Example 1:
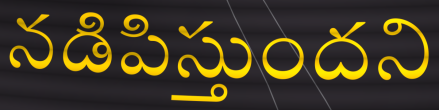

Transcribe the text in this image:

నడిపిస్తుందని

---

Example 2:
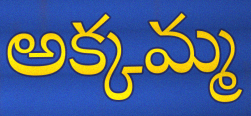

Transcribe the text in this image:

అక్కమ్మ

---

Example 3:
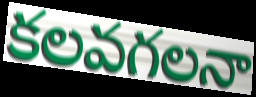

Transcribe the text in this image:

కలవగలనా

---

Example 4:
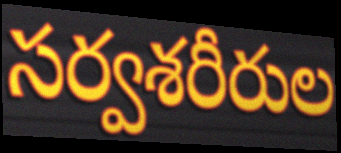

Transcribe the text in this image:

సర్వశరీరుల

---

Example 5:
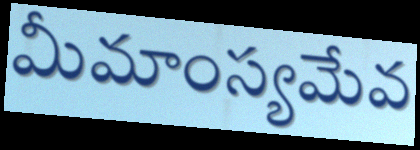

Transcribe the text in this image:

మీమాంస్యమేవ